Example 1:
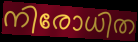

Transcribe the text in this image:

നിരോധിത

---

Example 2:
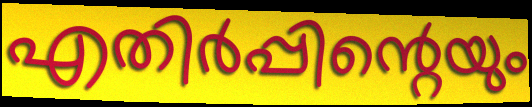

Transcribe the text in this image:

എതിർപ്പിന്റെയും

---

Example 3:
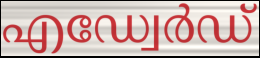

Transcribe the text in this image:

എഡ്വേർഡ്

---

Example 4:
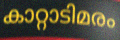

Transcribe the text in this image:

കാറ്റാടിമരം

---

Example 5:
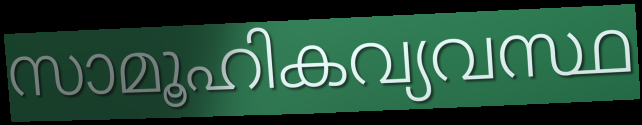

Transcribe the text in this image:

സാമൂഹികവ്യവസ്ഥ